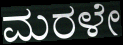
ಮರಳೇ